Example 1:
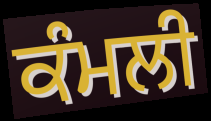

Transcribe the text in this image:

ਕੰਮਲੀ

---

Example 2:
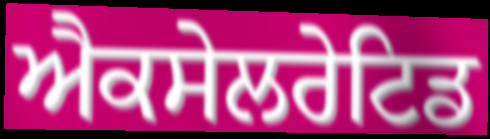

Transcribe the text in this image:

ਐਕਸੇਲਰੇਟਿਡ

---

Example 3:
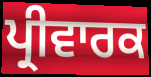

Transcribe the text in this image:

ਪ੍ਰੀਵਾਰਕ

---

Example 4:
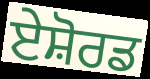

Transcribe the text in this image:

ਏਸ਼ੋਰਡ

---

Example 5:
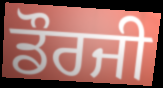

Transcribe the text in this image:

ਡੌਰਜੀ